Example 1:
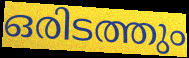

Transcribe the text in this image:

ഒരിടത്തും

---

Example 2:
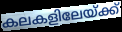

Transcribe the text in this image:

കലകളിലേയ്ക്ക്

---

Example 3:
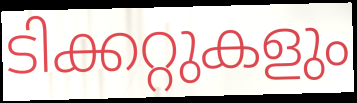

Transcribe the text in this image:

ടിക്കറ്റുകളും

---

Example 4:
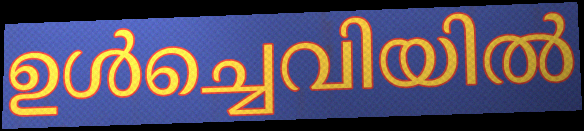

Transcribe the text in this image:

ഉൾച്ചെവിയിൽ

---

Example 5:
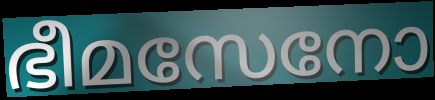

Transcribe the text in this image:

ഭീമസേനോ